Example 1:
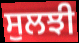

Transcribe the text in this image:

ਸੁਲਝੀ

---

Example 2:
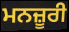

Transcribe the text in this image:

ਮਨਜ਼ੂਰੀ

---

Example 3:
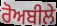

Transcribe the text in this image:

ਰੋਅਬੀਲੇ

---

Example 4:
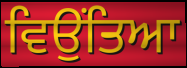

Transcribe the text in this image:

ਵਿਉਂਤਿਆ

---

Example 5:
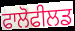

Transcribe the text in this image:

ਫਾਲੋਫੀਲਡ